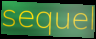
sequel